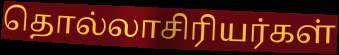
தொல்லாசிரியர்கள்